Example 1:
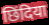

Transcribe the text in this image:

छिंदिया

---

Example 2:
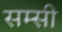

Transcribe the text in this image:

सम्सी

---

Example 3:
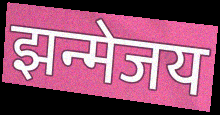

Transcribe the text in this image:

झन्मेजय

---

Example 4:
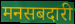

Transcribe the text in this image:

मनसबदारी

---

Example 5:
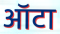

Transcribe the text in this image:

ऑटा